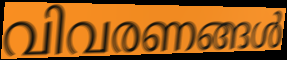
വിവരണങ്ങൾ